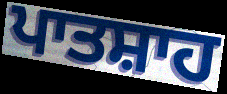
ਪਾਤਸ਼ਾਹ